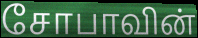
சோபாவின்